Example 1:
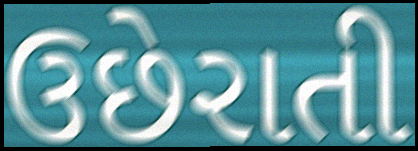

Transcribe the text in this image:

ઉછેરાતી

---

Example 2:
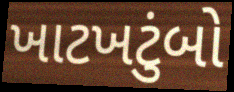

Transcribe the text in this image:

ખાટખટુંબો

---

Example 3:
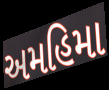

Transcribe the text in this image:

અમહિમા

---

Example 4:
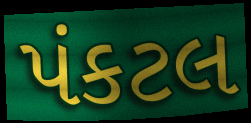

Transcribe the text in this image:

પંકટલ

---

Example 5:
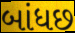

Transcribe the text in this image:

બાંધછ